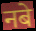
नबे